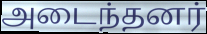
அடைந்தனர்